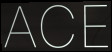
ACE